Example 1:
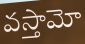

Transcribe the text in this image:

వస్తామో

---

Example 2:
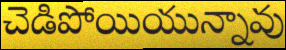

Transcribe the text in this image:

చెడిపోయియున్నావు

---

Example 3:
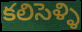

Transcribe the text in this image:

కలిసెళ్ళి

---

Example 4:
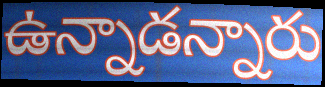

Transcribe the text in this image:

ఉన్నాడన్నారు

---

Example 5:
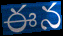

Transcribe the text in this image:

ఈన